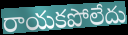
రాయకపోలేదు